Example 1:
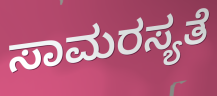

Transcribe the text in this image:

ಸಾಮರಸ್ಯತೆ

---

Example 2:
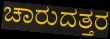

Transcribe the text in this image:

ಚಾರುದತ್ತರ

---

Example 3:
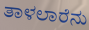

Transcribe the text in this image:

ತಾಳಲಾರೆನು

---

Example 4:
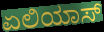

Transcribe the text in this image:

ಏಲಿಯಾಸ್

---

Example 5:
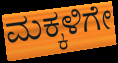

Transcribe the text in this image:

ಮಕ್ಕಳಿಗೇ